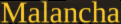
Malancha